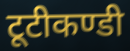
टूटीकण्डी